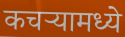
कचऱ्यामध्ये